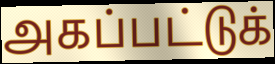
அகப்பட்டுக்